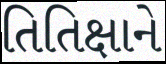
તિતિક્ષાને